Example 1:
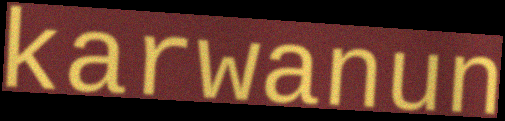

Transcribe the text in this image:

karwanun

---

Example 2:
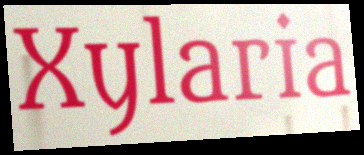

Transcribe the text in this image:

Xylaria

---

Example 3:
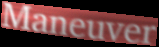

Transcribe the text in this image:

Maneuver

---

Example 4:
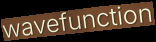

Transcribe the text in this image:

wavefunction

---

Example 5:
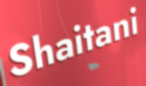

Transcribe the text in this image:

Shaitani